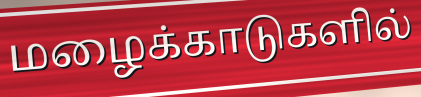
மழைக்காடுகளில்